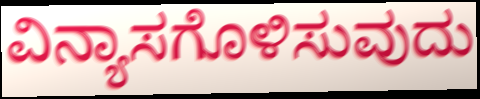
ವಿನ್ಯಾಸಗೊಳಿಸುವುದು